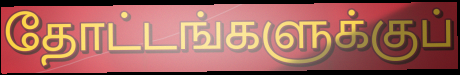
தோட்டங்களுக்குப்